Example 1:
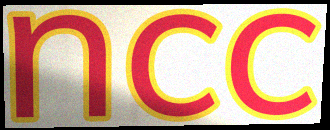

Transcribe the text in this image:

ncc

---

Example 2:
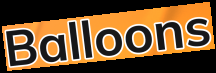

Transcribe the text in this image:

Balloons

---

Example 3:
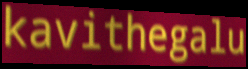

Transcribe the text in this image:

kavithegalu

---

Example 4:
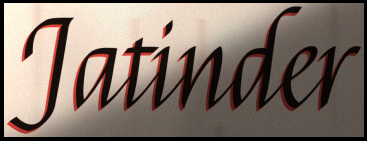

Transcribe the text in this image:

Jatinder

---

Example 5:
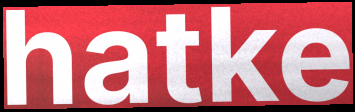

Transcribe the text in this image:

hatke